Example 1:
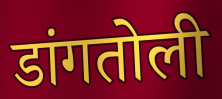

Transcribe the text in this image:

डांगतोली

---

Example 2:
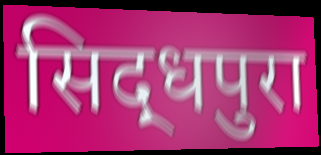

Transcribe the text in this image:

सिद्धपुरा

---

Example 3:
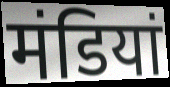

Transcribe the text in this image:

मंडियां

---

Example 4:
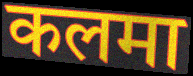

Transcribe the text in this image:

कलमा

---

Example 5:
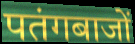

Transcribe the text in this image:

पतंगबाजों